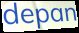
depan